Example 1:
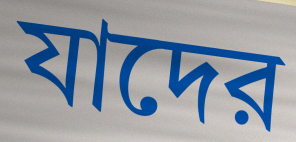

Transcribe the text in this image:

যাদের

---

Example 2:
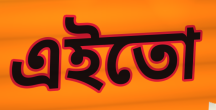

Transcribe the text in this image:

এইতো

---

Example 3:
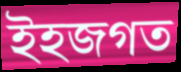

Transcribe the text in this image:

ইহজগত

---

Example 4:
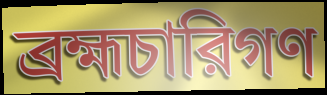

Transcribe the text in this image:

ব্রহ্মচারিগণ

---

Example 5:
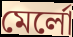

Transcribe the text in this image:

মের্লো